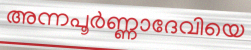
അന്നപൂർണ്ണാദേവിയെ